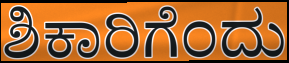
ಶಿಕಾರಿಗೆಂದು